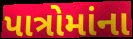
પાત્રોમાંના